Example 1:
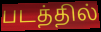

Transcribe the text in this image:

படத்தில்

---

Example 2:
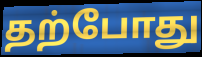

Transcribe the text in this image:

தற்போது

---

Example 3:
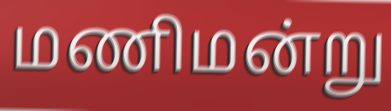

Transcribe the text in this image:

மணிமன்று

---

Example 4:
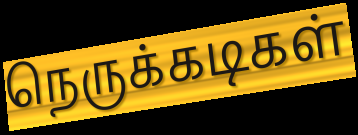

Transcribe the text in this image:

நெருக்கடிகள்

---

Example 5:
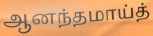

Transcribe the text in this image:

ஆனந்தமாய்த்